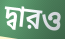
দ্বারও